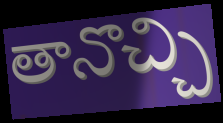
తానొచ్చి